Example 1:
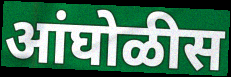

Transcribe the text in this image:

आंघोळीस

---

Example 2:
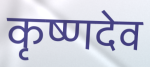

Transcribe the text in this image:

कृष्णदेव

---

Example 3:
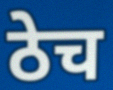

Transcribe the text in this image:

ठेच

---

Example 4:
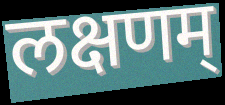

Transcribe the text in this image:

लक्षणम्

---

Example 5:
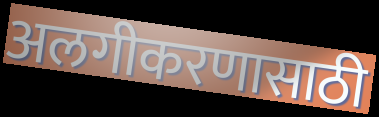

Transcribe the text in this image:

अलगीकरणासाठी